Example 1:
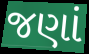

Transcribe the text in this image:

જણાં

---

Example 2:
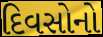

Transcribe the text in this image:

દિવસોનો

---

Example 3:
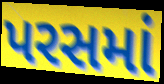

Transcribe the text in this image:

પરસમાં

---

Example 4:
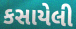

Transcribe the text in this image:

કસાયેલી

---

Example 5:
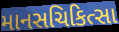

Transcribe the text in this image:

માનસચિકિત્સા